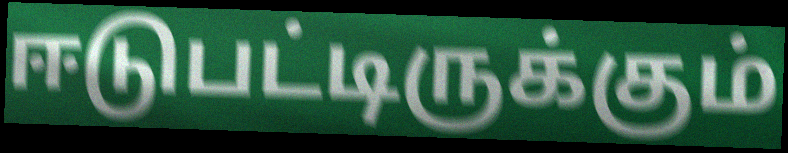
ஈடுபட்டிருக்கும்